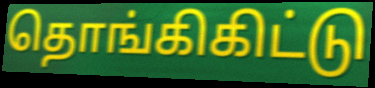
தொங்கிகிட்டு